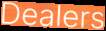
Dealers